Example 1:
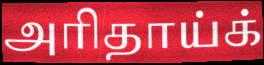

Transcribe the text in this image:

அரிதாய்க்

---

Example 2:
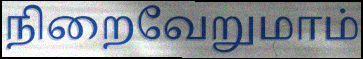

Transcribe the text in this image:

நிறைவேறுமாம்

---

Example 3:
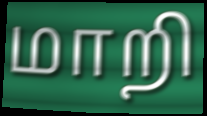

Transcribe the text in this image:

மாறி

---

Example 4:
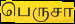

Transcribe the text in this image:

பெருசா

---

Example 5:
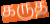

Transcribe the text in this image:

கருத